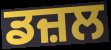
ਡਜ਼ਲ